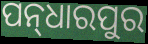
ପନ୍‌ଧାରପୁର